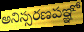
అనిస్సరణపఞ్ఞో